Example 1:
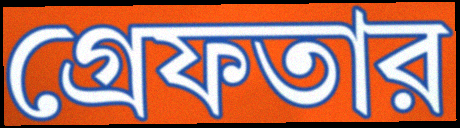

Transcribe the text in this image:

গ্রেফতার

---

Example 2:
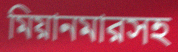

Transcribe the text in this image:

মিয়ানমারসহ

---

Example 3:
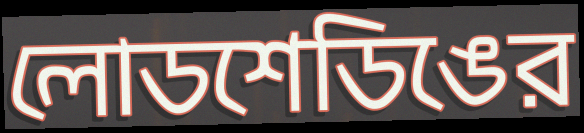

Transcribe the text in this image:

লোডশেডিঙের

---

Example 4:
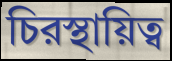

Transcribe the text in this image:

চিরস্থায়িত্ব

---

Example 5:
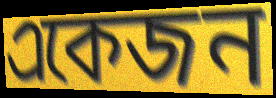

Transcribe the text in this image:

একেজন